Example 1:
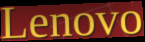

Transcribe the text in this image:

Lenovo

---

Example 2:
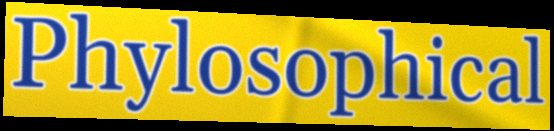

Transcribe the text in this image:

Phylosophical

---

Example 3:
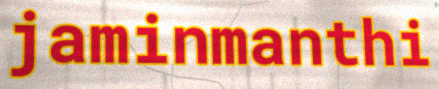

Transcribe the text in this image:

jaminmanthi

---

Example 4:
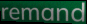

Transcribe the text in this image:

remand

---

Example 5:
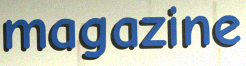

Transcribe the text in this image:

magazine